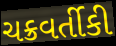
ચક્રવર્તીકી